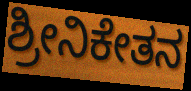
ಶ್ರೀನಿಕೇತನ